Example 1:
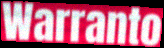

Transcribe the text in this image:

Warranto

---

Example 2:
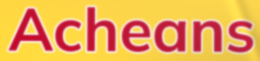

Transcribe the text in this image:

Acheans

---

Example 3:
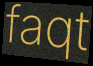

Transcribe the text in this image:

faqt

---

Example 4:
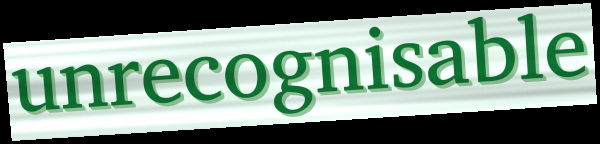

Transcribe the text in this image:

unrecognisable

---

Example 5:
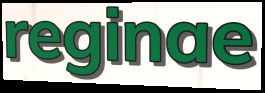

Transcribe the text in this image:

reginae